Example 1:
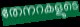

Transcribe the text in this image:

തേനറകളുടെ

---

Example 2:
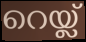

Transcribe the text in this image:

റെയ്ല്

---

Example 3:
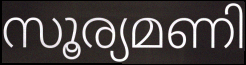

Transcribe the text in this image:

സൂര്യമണി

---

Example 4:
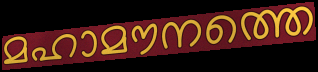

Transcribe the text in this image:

മഹാമൗനത്തെ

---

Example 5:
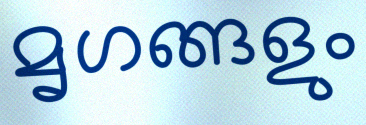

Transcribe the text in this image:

മൃഗങ്ങളും